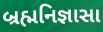
બ્રહ્મનિજ્ઞાસા